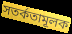
সতর্কতামূলক